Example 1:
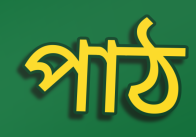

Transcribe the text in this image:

পাঠ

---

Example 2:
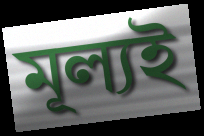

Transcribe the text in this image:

মূল্যই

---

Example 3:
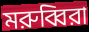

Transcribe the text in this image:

মরুব্বিরা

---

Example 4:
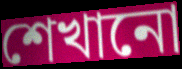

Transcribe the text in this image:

শেখানো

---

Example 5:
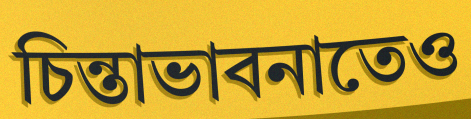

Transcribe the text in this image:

চিন্তাভাবনাতেও